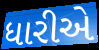
ધારીએ